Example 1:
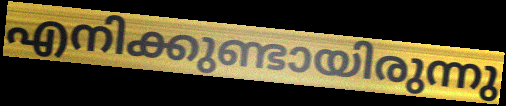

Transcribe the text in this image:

എനിക്കുണ്ടായിരുന്നു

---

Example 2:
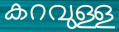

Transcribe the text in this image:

കറവുള്ള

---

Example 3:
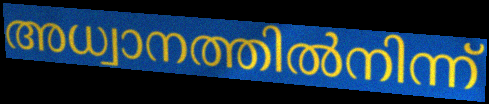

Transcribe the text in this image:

അധ്വാനത്തിൽനിന്ന്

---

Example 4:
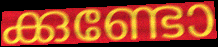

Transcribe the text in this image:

ക്കുണ്ടോ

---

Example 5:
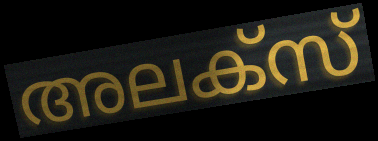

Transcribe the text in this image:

അലക്സ്